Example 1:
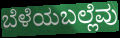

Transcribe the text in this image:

ಬೆಳೆಯಬಲ್ಲೆವು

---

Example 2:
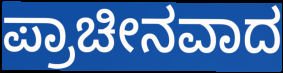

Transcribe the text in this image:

ಪ್ರಾಚೀನವಾದ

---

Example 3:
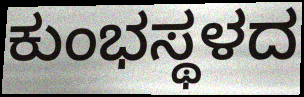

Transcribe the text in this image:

ಕುಂಭಸ್ಥಳದ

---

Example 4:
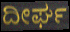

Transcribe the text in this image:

ದೀರ್ಘ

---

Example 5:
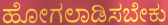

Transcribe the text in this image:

ಹೋಗಲಾಡಿಸಬೇಕು